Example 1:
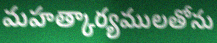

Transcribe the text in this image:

మహత్కార్యములతోను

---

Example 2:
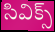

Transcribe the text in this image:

సివిక్స్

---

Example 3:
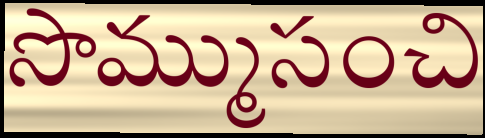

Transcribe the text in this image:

సొమ్ముసంచి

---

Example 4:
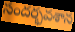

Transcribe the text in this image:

సందర్భవశాన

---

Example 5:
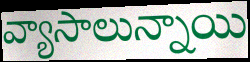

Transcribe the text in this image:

వ్యాసాలున్నాయి